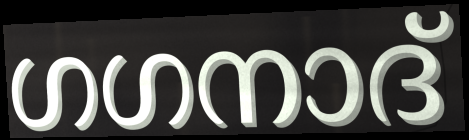
ഗഗനാദ്